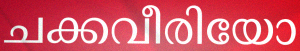
ചക്കവീരിയോ